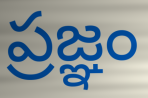
ప్రజ్ఞం